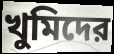
খুমিদের